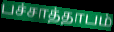
பச்சாத்தாபம்